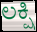
ಲಕ್ಷಿ